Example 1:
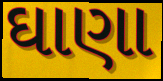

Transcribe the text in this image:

ઘાણા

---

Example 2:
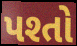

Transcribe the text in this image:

પશ્તો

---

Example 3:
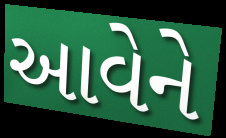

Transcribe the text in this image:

આવેને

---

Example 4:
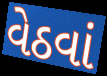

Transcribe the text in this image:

વેઠવાં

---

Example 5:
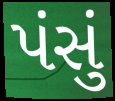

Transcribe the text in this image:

પંસું